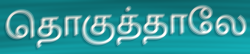
தொகுத்தாலே